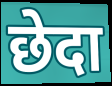
छेदा